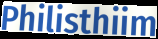
Philisthiim